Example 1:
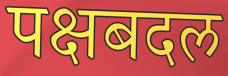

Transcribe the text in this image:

पक्षबदल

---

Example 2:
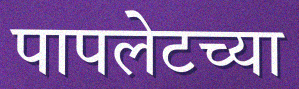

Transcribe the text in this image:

पापलेटच्या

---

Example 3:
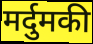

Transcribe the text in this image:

मर्दुमकी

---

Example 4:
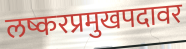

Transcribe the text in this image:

लष्करप्रमुखपदावर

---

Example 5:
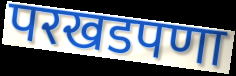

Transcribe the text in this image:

परखडपणा